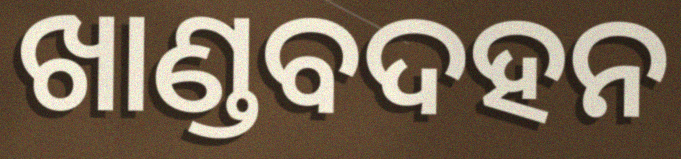
ଖାଣ୍ଡବଦହନ